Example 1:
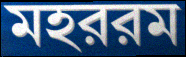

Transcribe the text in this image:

মহররম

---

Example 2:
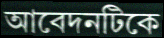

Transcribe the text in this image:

আবেদনটিকে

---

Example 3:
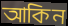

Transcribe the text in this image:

আকিন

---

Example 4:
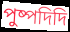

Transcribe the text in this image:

পুষ্পদিদি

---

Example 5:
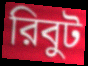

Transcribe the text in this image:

রিবুট